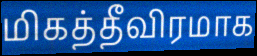
மிகத்தீவிரமாக